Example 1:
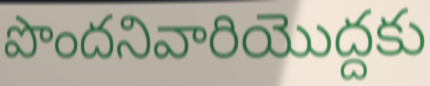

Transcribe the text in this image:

పొందనివారియొద్దకు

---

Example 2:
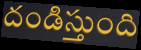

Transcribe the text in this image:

దండిస్తుంది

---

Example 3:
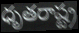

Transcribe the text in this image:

ధృతరాష్ట్ర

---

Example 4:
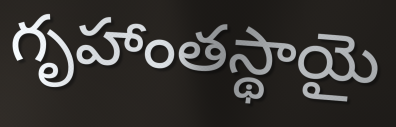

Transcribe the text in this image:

గృహాంతస్థాయై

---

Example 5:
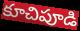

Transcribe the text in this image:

కూచిపూడి